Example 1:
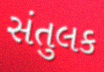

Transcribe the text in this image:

સંતુલક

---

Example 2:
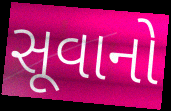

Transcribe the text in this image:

સૂવાનો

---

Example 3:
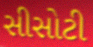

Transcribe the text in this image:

સીસોટી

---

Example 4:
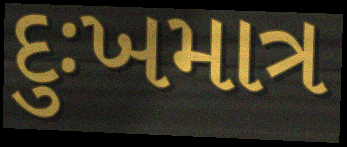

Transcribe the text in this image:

દુઃખમાત્ર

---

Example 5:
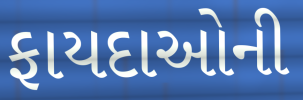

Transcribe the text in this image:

ફાયદાઓની